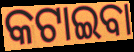
କଟାଇବା